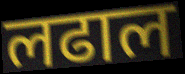
लढाल